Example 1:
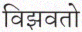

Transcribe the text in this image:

विझवतो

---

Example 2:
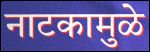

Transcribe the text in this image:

नाटकामुळे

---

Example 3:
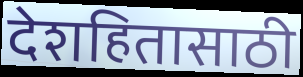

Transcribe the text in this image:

देशहितासाठी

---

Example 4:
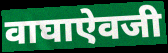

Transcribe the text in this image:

वाघाऐवजी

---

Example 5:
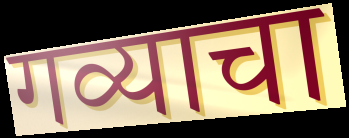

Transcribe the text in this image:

गव्याचा